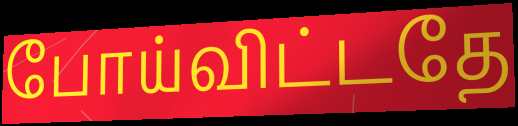
போய்விட்டதே